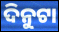
ଦିନୁଟା